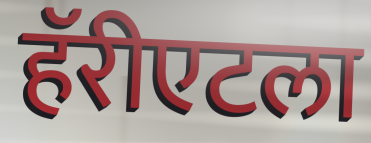
हॅरीएटला